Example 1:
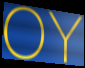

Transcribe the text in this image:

OY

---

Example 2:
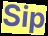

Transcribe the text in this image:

Sip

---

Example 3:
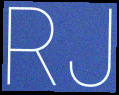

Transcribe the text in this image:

RJ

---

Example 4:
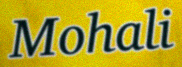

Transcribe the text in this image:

Mohali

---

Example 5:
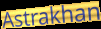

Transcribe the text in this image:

Astrakhan